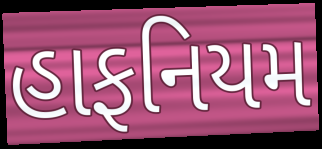
હાફનિયમ